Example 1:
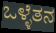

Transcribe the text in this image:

ಒಳ್ಳೆತನ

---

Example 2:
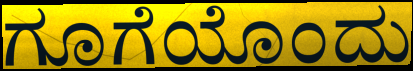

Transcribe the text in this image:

ಗೂಗೆಯೊಂದು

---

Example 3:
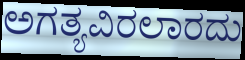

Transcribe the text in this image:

ಅಗತ್ಯವಿರಲಾರದು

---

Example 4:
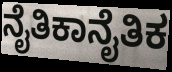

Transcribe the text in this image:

ನೈತಿಕಾನೈತಿಕ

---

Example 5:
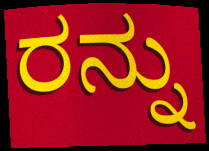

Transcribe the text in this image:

ರನ್ನು